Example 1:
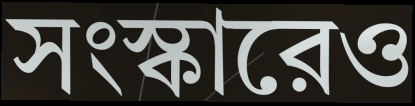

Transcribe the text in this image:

সংস্কারেও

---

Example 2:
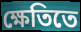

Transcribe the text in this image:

ক্ষেতিতে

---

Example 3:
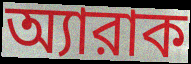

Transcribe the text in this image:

অ্যারাক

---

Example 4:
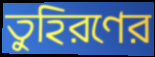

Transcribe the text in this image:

তুহিরণের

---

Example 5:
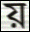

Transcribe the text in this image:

য়